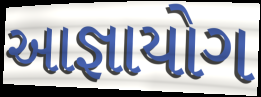
આજ્ઞાયોગ